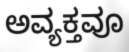
ಅವ್ಯಕ್ತವೂ